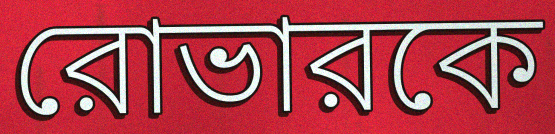
রোভারকে